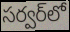
సర్వర్‌లో